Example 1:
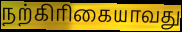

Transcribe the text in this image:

நற்கிரிகையாவது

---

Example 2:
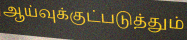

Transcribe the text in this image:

ஆய்வுக்குட்படுத்தும்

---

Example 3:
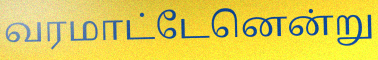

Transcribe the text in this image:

வரமாட்டேனென்று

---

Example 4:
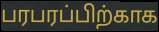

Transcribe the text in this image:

பரபரப்பிற்காக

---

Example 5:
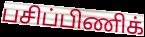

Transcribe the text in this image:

பசிப்பிணிக்